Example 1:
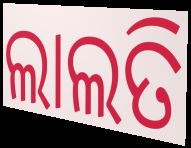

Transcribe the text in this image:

ଲାଲତି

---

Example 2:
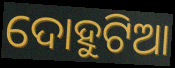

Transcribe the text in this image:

ଦୋହୁଟିଆ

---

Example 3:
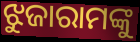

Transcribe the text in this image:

ଝୁଜାରାମଙ୍କୁ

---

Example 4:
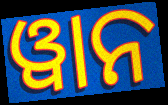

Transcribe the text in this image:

ୱାନ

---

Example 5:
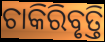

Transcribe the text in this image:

ଚାକିରିବୃତ୍ତି